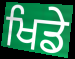
ਖਿਡੇ